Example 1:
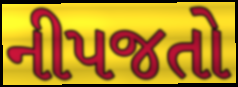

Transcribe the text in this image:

નીપજતો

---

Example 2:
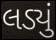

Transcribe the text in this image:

લડ્યું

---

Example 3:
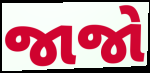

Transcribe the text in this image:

જાજો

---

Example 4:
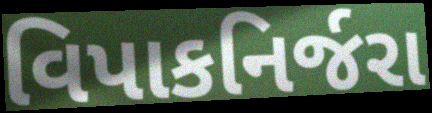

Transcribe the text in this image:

વિપાકનિર્જરા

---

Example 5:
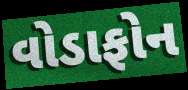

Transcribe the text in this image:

વોડાફોન